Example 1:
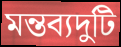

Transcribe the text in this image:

মন্তব্যদুটি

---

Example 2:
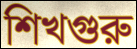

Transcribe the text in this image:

শিখগুরু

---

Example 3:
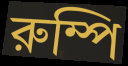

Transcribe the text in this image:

রুম্পি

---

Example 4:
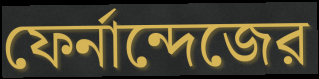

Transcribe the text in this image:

ফের্নান্দেজের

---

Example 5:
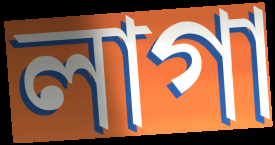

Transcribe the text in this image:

লাগা